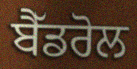
ਬੈੱਡਰੋਲ